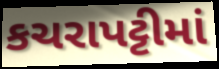
કચરાપટ્ટીમાં